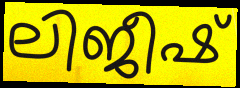
ലിജീഷ്